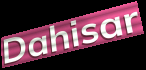
Dahisar